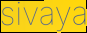
sivaya